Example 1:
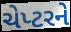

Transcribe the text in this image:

ચેપ્ટરને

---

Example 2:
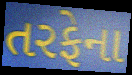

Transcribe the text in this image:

તરફેના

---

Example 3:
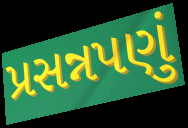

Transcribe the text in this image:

પ્રસન્નપણું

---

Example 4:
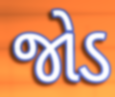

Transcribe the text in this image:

જોડ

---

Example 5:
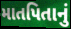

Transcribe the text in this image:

માતપિતાનું